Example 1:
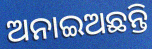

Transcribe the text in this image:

ଅନାଇଅଛନ୍ତି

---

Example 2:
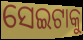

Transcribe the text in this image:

ସେଇଟାକୁ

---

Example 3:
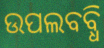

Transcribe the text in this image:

ଉପଲବବ୍ଧି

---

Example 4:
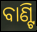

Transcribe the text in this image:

ବାଣ୍ଟି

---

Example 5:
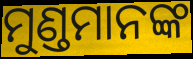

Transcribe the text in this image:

ମୁଣ୍ଡମାନଙ୍କ